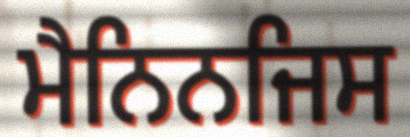
ਮੈਨਿਨਜਿਸ